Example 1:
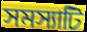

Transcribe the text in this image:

সমস্যাটি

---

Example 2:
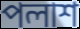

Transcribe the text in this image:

পলাশ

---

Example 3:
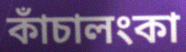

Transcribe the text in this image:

কাঁচালংকা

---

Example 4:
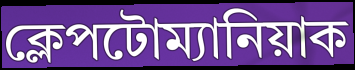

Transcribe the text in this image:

ক্লেপটোম্যানিয়াক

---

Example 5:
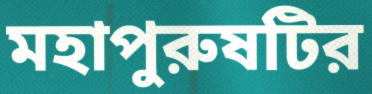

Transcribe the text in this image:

মহাপুরুষটির